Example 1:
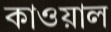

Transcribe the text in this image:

কাওয়াল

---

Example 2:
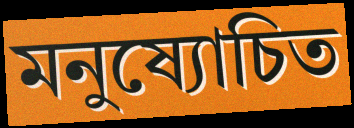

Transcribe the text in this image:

মনুষ্যোচিত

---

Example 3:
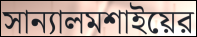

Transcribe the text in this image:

সান্যালমশাইয়ের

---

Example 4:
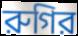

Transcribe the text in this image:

রুগির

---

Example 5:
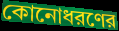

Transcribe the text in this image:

কোনোধরণের